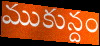
ముకున్దం